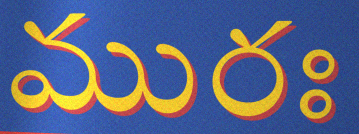
మురః